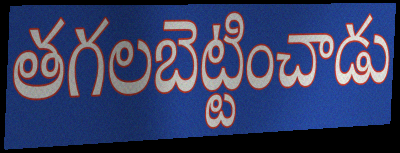
తగలబెట్టించాడు